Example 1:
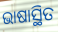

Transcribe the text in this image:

ଭାଷାସ୍ଥିତ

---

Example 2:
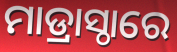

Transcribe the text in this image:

ମାଡ୍ରାସ୍ଠାରେ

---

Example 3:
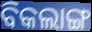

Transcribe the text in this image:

ବିକଲାଙ୍ଗ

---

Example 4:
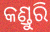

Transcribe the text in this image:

କଣ୍ଡୁରି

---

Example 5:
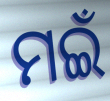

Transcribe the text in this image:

ମଇଁ